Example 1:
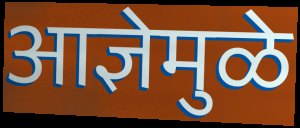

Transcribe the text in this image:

आज्ञेमुळे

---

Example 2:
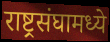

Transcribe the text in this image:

राष्ट्रसंघामध्ये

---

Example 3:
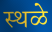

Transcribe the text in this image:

स्थळे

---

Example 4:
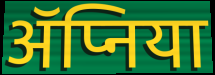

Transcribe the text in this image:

ॲप्निया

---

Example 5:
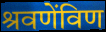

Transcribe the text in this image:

श्रवणेंविण